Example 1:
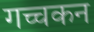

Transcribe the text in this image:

गच्चकन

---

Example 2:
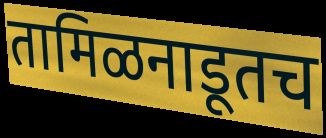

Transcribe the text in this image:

तामिळनाडूतच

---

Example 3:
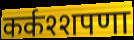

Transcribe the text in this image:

कर्कश्शपणा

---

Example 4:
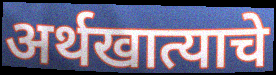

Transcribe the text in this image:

अर्थखात्याचे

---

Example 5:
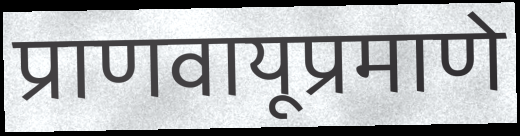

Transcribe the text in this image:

प्राणवायूप्रमाणे